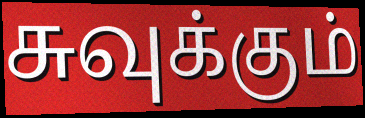
சுவுக்கும்